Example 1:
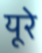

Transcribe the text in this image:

यूरे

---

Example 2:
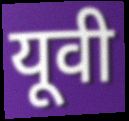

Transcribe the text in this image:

यूवी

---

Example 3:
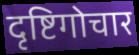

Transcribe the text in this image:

दृष्टिगोचार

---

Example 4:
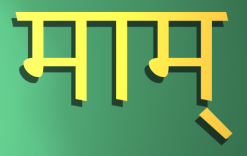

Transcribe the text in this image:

माम्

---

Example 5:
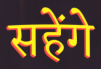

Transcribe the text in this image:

सहेंगे